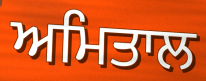
ਅਮਿਤਾਲ